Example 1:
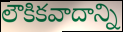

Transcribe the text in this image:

లౌకికవాదాన్ని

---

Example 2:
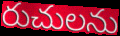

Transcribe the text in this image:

రుచులను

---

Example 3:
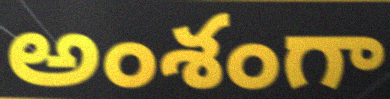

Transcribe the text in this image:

అంశంగా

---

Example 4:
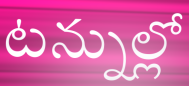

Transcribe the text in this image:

టన్నుల్లో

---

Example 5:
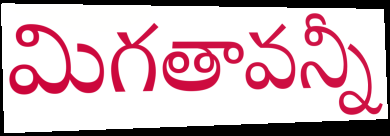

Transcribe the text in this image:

మిగతావన్నీ